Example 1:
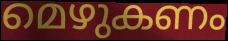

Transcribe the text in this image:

മെഴുകണം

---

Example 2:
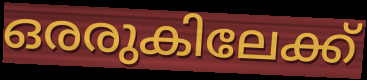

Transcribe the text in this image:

ഒരരുകിലേക്ക്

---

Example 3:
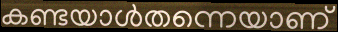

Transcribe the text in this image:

കണ്ടയാൾതന്നെയാണ്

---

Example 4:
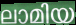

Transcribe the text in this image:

ലാമിയ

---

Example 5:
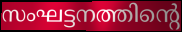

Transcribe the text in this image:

സംഘട്ടനത്തിന്റെ